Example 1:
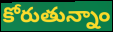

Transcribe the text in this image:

కోరుతున్నాం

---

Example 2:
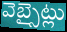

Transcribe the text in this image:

వెబ్సైట్లు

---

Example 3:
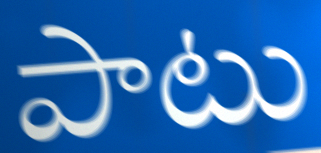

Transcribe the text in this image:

పాటు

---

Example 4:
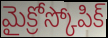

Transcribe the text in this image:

మైక్రోస్కోపిక్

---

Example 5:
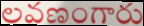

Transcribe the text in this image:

లవణంగారు